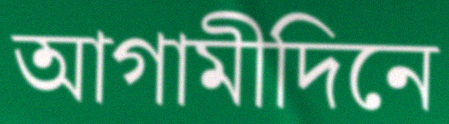
আগামীদিনে